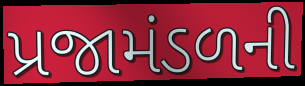
પ્રજામંડળની